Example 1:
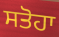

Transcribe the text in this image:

ਸਤੋਹਾ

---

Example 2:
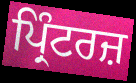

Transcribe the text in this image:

ਪ੍ਰਿੰਟਰਜ਼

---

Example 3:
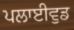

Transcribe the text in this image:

ਪਲਾਈਵੁਡ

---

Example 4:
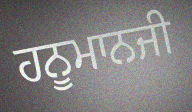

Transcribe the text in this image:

ਹਨੂਮਾਨਜੀ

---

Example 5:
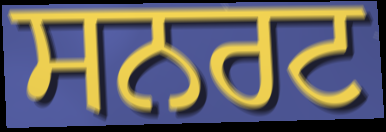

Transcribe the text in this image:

ਸਨਰਟ